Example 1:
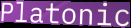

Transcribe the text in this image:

Platonic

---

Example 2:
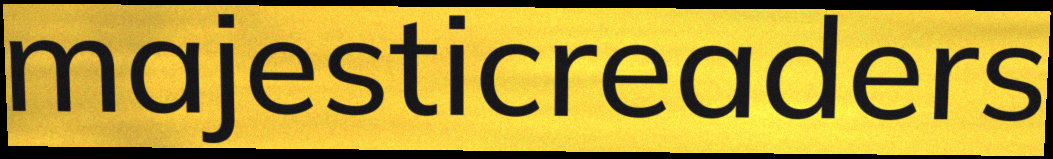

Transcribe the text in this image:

majesticreaders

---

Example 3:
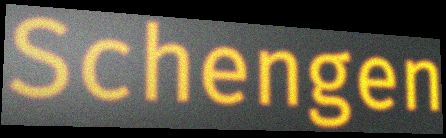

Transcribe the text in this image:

Schengen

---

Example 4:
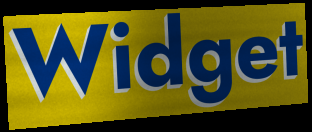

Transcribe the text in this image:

Widget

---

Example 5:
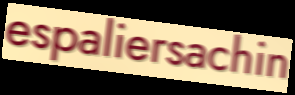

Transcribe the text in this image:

espaliersachin